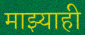
माझ्याही